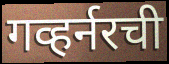
गव्हर्नरची